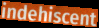
indehiscent